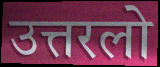
उत्तरलो